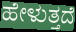
ಹೇಳುತ್ತದೆ